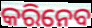
କରିନେବ